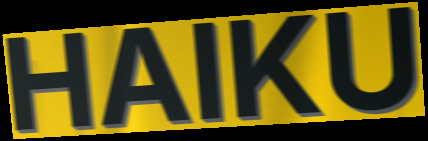
HAIKU